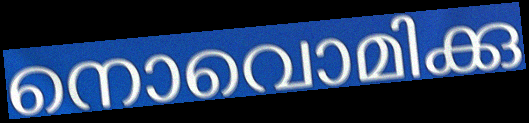
നൊവൊമിക്കു